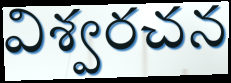
విశ్వరచన